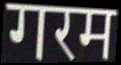
गरम